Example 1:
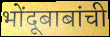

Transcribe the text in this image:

भोंदूबाबांची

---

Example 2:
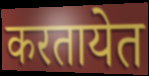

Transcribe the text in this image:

करतायेत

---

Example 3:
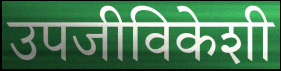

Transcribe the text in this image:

उपजीविकेशी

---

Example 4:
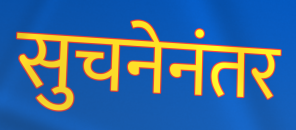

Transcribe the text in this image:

सुचनेनंतर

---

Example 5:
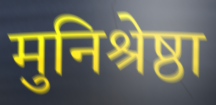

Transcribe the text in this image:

मुनिश्रेष्ठा